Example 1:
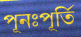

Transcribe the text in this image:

পূনঃপূৰ্তি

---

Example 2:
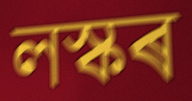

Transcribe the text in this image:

লস্কৰ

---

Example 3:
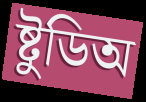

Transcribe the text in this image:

ষ্টুডিঅ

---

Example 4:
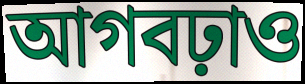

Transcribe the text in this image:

আগবঢ়াও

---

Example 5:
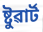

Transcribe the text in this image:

ষ্টুৱাৰ্ট